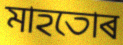
মাহতোৰ